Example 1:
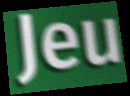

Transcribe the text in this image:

Jeu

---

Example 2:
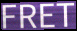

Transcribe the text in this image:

FRET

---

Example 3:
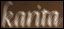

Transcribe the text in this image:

karita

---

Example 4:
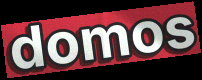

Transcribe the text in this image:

domos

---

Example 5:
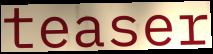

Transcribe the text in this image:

teaser